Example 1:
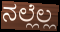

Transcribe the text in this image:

ನಲ್ಲೆಲ್ಲ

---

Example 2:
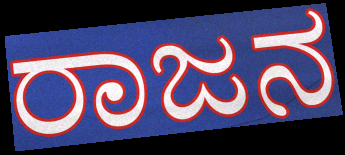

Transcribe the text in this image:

ರಾಜನ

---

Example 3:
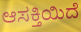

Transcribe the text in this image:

ಆಸಕ್ತಿಯಿದೆ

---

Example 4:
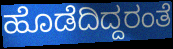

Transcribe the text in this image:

ಹೊಡೆದಿದ್ದರಂತೆ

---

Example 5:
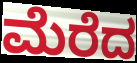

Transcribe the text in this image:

ಮೆರೆದ